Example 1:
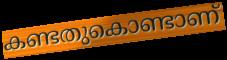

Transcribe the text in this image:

കണ്ടതുകൊണ്ടാണ്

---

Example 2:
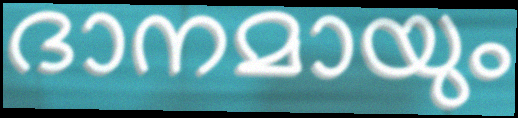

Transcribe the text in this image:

ദാനമായും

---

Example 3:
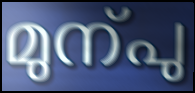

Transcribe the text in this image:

മുന്പു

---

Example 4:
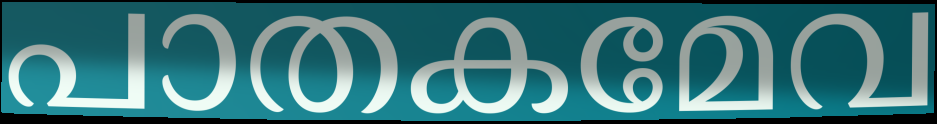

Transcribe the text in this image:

പാതകമേവ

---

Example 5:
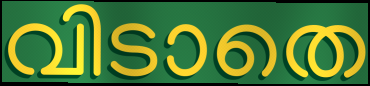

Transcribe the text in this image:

വിടാതെ